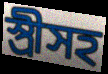
স্ত্রীসহ